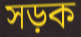
সড়ক